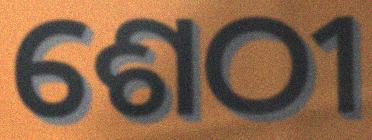
ଶେଠୀ